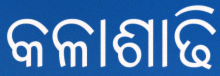
କଳାଶାଢି